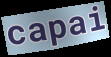
capai